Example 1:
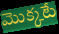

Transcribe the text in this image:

మొక్కటే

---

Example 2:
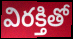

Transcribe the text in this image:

విరక్తితో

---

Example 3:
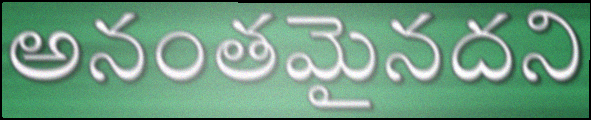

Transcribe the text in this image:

అనంతమైనదని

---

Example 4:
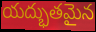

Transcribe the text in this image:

యద్భుతమైన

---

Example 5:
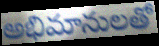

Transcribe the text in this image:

అభిమానులతో